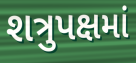
શત્રુપક્ષમાં